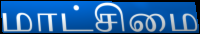
மாட்சிமை